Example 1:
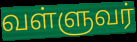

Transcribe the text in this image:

வள்ளுவர்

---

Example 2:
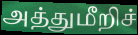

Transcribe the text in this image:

அத்துமீறிச்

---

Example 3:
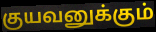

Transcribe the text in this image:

குயவனுக்கும்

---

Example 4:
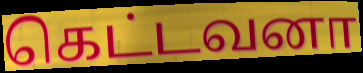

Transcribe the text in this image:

கெட்டவனா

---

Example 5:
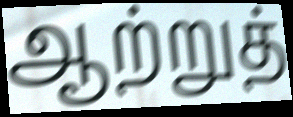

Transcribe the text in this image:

ஆற்றுத்